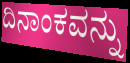
ದಿನಾಂಕವನ್ನು